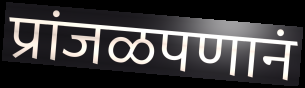
प्रांजळपणानं